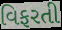
વિફરતી